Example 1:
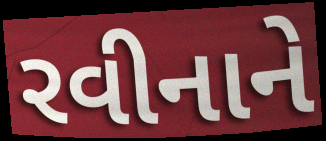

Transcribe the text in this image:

રવીનાને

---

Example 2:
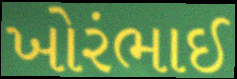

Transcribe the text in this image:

ખોરંભાઈ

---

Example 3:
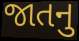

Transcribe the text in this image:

જાતનુ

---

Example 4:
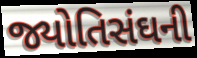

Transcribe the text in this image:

જ્યોતિસંઘની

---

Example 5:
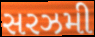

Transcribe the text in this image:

સરઝમી